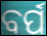
ବର୍ପ